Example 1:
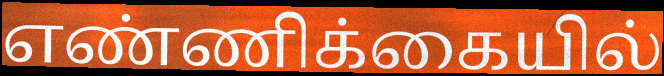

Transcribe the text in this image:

எண்ணிக்கையில்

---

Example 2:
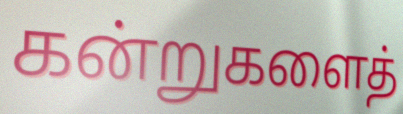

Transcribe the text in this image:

கன்றுகளைத்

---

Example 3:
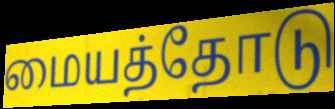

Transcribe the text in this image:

மையத்தோடு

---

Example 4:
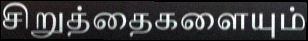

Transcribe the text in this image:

சிறுத்தைகளையும்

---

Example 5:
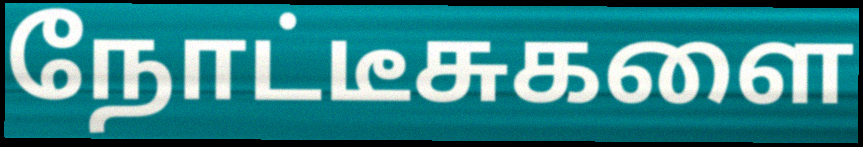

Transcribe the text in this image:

நோட்டீசுகளை